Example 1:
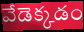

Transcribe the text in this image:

వేడెక్కడం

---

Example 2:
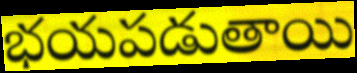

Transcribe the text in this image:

భయపడుతాయి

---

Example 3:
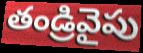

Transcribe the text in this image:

తండ్రివైపు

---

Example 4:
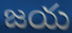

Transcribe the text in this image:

జయ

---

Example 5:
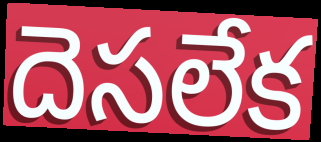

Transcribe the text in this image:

దెసలేక